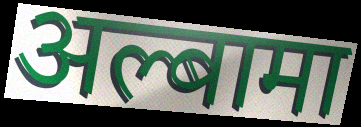
अल्बामा